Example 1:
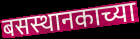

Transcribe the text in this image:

बसस्थानकाच्या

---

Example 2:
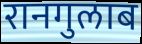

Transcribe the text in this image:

रानगुलाब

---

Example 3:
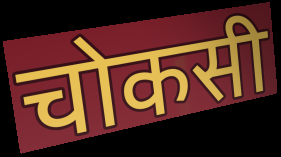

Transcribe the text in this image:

चोकसी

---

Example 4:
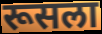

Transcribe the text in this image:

रूसला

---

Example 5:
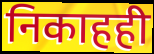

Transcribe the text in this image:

निकाहही